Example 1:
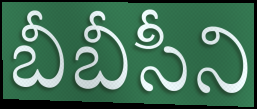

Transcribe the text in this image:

బీబీసీని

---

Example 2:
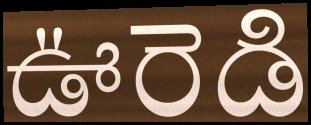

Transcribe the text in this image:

ఊరెడి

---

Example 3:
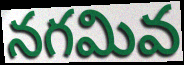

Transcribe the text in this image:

నగమివ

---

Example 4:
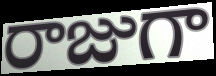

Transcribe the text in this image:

రాజుగా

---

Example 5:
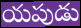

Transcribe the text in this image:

యపుడు